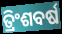
ତ୍ରିଂଶବର୍ଷ